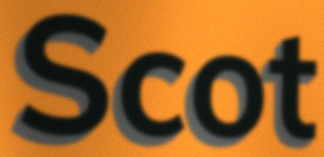
Scot